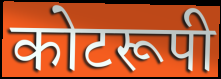
कोटरूपी